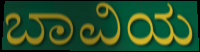
ಬಾವಿಯ